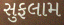
સુફલામ